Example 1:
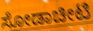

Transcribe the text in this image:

ಸೋಡಾಚೀಟಿ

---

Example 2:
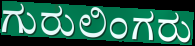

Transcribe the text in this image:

ಗುರುಲಿಂಗರು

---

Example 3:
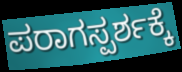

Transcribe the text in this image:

ಪರಾಗಸ್ಪರ್ಶಕ್ಕೆ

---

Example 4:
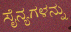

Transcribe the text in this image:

ಸೈನ್ಯಗಳನ್ನು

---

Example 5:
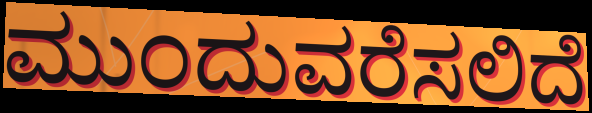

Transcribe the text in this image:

ಮುಂದುವರೆಸಲಿದೆ